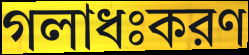
গলাধঃকরণ